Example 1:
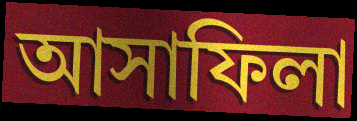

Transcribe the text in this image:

আসাফিলা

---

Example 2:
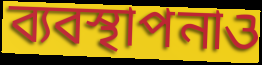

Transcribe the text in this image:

ব্যবস্থাপনাও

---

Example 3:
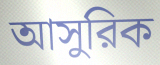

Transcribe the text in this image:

আসুরিক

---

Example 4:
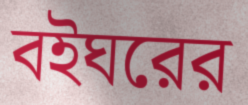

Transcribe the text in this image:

বইঘরের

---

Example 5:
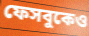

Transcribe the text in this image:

ফেসবুকেও